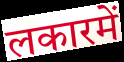
लकारमें